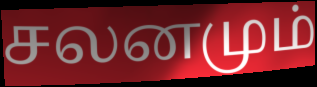
சலனமும்